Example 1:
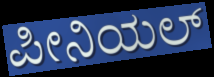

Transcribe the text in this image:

ಪೀನಿಯಲ್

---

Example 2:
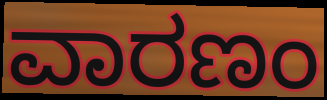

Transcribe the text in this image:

ವಾರಣಂ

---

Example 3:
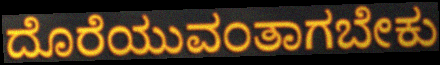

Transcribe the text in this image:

ದೊರೆಯುವಂತಾಗಬೇಕು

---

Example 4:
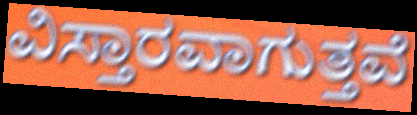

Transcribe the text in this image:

ವಿಸ್ತಾರವಾಗುತ್ತವೆ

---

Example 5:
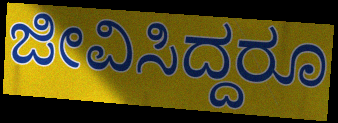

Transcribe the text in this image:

ಜೀವಿಸಿದ್ದರೂ